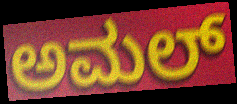
ಅಮಲ್